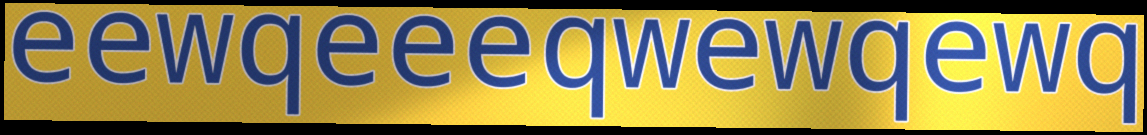
eewqeeeqwewqewq